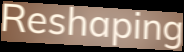
Reshaping